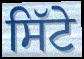
ਸਿੱਟੇ